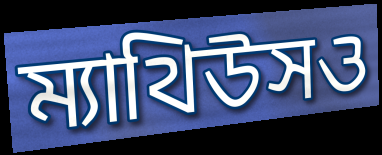
ম্যাথিউসও